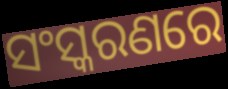
ସଂସ୍କରଣରେ